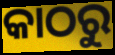
କାଠରୁ